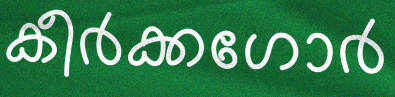
കീർക്കഗോർ